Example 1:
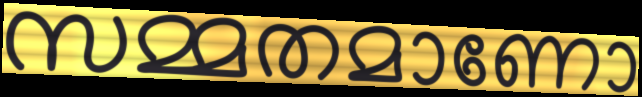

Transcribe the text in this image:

സമ്മതമാണോ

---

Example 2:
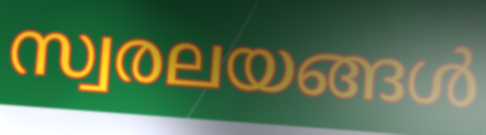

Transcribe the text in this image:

സ്വരലയങ്ങൾ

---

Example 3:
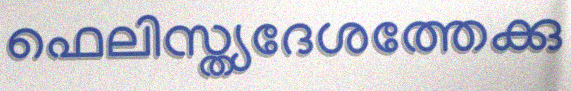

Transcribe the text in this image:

ഫെലിസ്ത്യദേശത്തേക്കു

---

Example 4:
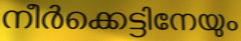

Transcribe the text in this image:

നീർക്കെട്ടിനേയും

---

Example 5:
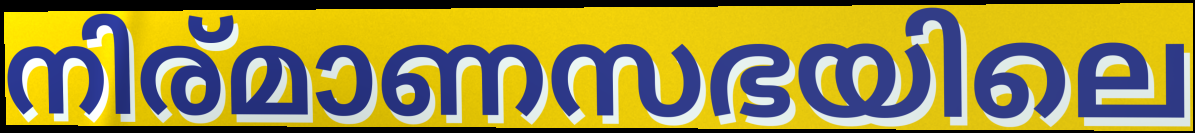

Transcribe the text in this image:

നിര്മാണസഭയിലെ